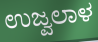
ಉಜ್ವಲಾಳ